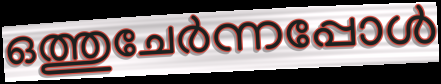
ഒത്തുചേർന്നപ്പോൾ